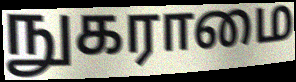
நுகராமை